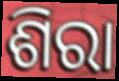
ଶିରା